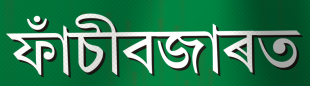
ফাঁচীবজাৰত